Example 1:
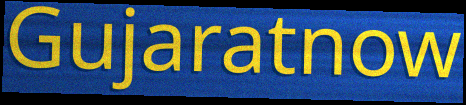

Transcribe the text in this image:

Gujaratnow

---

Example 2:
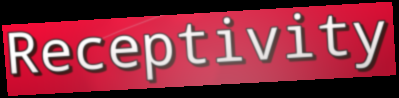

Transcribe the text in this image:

Receptivity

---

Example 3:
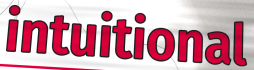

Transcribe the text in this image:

intuitional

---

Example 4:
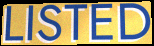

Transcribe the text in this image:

LISTED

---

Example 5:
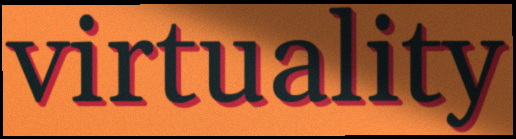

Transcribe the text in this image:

virtuality